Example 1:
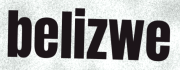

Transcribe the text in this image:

belizwe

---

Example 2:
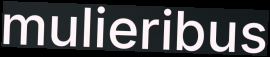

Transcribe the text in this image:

mulieribus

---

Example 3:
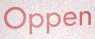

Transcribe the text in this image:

Oppen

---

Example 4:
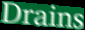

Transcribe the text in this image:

Drains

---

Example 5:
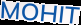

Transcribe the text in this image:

MOHIT